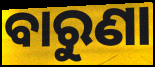
ବାରୁଣା